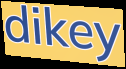
dikey